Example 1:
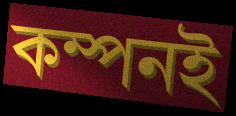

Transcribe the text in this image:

কম্পনই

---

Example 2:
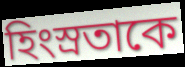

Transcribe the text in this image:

হিংস্রতাকে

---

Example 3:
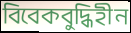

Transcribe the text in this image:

বিবেকবুদ্ধিহীন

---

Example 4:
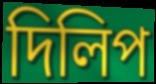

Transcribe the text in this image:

দিলিপ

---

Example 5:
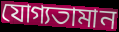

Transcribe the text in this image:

যোগ্যতামান